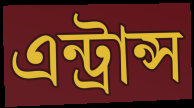
এন্ট্রান্স